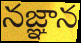
నజ్ఞాన